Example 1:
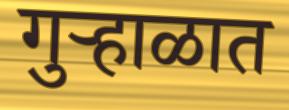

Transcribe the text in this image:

गुऱ्हाळात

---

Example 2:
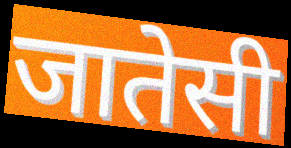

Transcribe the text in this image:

जातेसी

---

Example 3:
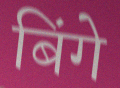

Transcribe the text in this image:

बिंगे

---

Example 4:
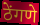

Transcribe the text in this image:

ठेंगणे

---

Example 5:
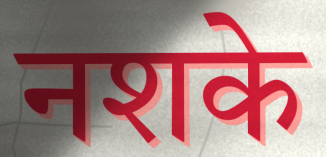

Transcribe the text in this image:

नशके